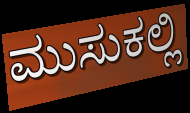
ಮುಸುಕಲ್ಲಿ